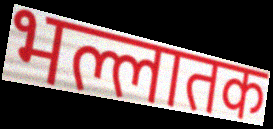
भल्लातक